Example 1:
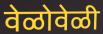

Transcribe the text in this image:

वेळोवेळी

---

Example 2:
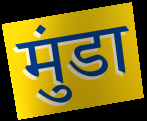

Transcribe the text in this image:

मुंडा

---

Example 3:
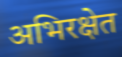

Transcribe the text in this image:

अभिरक्षेत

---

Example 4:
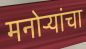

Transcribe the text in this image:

मनोर्‍यांचा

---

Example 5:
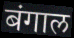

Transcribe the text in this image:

बंगाल